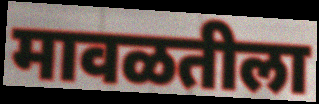
मावळतीला